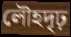
লৌহদৃঢ়